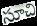
సూచి